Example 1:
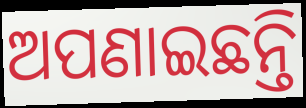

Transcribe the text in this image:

ଅପଣାଇଛନ୍ତି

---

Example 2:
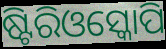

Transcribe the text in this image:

ଷ୍ଟିରିଓସ୍କୋପି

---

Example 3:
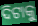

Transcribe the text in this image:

ଦିଟାକୁ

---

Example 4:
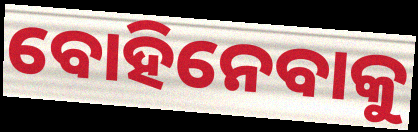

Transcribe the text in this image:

ବୋହିନେବାକୁ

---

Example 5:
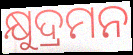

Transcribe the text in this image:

କ୍ଷୁଦ୍ରମନ